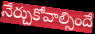
నేర్చుకోవాల్సిందే